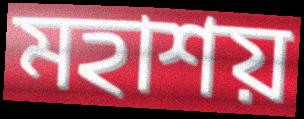
মহাশয়